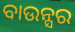
ବାଉନ୍ସର